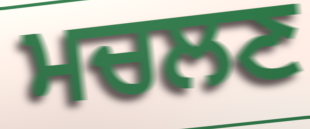
ਮਚਲਣ